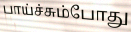
பாய்ச்சும்போது